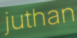
juthan